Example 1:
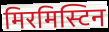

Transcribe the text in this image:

मिरमिस्टिन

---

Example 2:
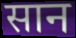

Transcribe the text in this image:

सान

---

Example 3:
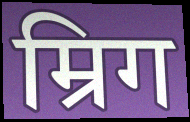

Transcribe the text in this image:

म्रिग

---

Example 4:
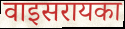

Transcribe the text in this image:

वाइसरायका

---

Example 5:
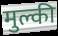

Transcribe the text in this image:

मुल्की